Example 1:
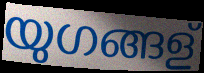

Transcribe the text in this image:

യുഗങ്ങള്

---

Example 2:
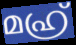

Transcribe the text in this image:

മഹ്ര്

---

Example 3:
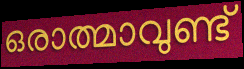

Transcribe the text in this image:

ഒരാത്മാവുണ്ട്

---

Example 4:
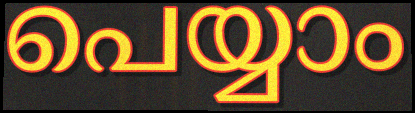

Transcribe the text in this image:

പെയ്യാം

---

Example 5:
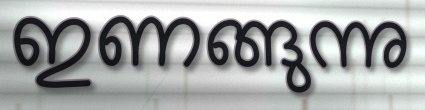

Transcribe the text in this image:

ഇണങ്ങുന്നു